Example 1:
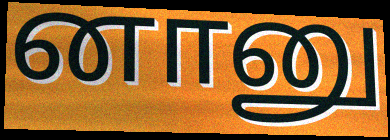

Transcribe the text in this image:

னானு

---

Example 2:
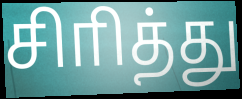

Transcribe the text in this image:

சிரித்து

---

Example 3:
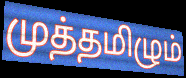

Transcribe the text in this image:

முத்தமிழும்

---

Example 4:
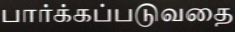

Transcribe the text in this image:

பார்க்கப்படுவதை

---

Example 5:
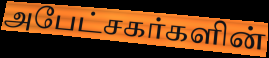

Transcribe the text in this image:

அபேட்சகர்களின்